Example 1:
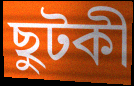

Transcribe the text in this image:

ছুটকী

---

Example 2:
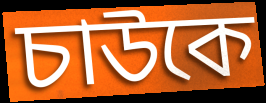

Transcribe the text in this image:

চাউকে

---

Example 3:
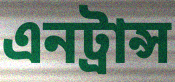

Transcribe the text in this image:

এনট্রান্স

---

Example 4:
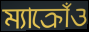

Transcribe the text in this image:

ম্যাক্রোঁও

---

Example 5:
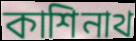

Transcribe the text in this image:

কাশিনাথ